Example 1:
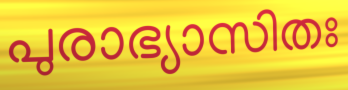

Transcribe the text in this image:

പുരാഭ്യാസിതഃ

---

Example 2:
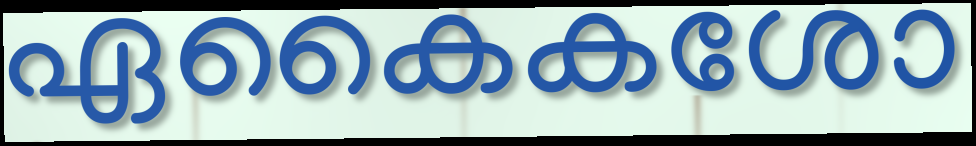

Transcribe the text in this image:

ഏകൈകശോ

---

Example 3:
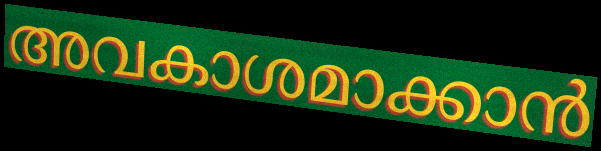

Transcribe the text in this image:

അവകാശമാക്കാൻ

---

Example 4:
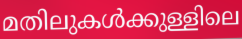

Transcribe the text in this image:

മതിലുകൾക്കുള്ളിലെ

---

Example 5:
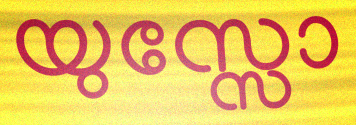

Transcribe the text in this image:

യുസ്സോ